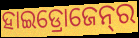
ହାଇଡ୍ରୋଜେନ୍‌ର